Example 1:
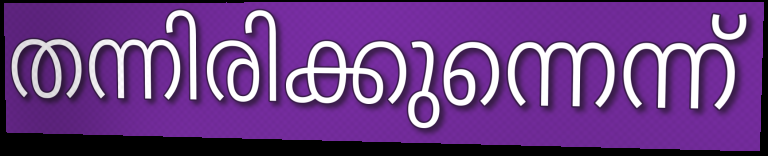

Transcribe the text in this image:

തന്നിരിക്കുന്നെന്ന്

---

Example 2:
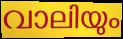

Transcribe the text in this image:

വാലിയും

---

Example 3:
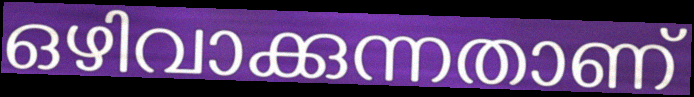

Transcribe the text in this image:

ഒഴിവാക്കുന്നതാണ്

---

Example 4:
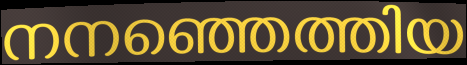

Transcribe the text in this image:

നനഞ്ഞെത്തിയ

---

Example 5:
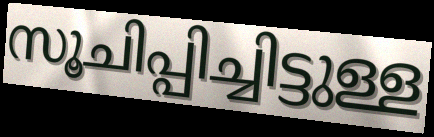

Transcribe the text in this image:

സൂചിപ്പിച്ചിട്ടുള്ള